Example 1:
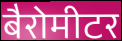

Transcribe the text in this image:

बैरोमीटर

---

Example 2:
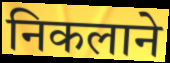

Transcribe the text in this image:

निकलाने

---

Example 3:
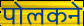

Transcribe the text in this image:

पोलकने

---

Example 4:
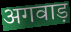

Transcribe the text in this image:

अगवाड़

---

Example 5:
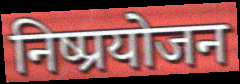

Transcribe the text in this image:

निष्प्रयोजन